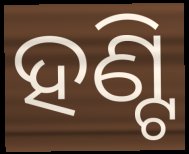
ହଣ୍ଟି